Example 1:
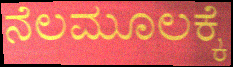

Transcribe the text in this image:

ನೆಲಮೂಲಕ್ಕೆ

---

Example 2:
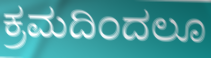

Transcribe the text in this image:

ಕ್ರಮದಿಂದಲೂ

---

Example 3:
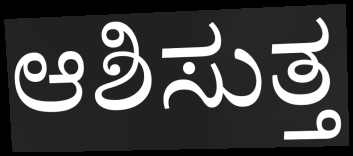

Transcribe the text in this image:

ಆಶಿಸುತ್ತ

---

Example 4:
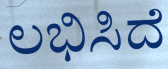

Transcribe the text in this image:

ಲಭಿಸಿದೆ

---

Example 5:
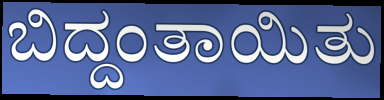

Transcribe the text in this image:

ಬಿದ್ದಂತಾಯಿತು